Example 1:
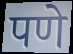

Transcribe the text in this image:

पणे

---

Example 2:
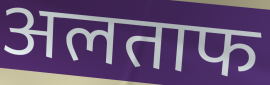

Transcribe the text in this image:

अलताफ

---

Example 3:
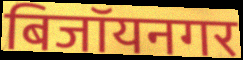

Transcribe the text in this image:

बिजॉयनगर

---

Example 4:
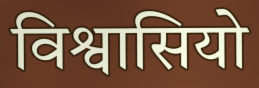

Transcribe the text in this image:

विश्वासियो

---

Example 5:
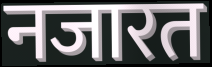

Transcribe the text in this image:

नजारत